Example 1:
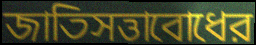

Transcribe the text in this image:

জাতিসত্তাবোধের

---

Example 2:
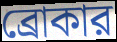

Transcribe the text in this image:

ব্রোকার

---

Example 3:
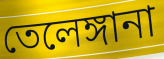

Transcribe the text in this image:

তেলেঙ্গানা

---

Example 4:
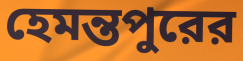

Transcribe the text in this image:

হেমন্তপুরের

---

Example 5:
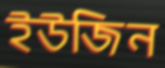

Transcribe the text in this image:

ইউজিন